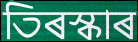
তিৰস্কাৰ